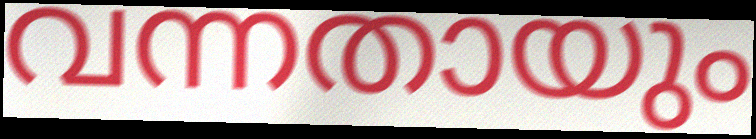
വന്നതായും